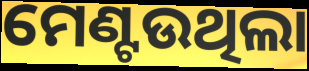
ମେଣ୍ଟଉଥିଲା